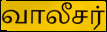
வாலீசர்